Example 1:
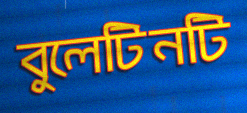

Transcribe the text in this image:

বুলেটিনটি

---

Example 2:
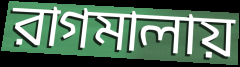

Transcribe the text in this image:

রাগমালায়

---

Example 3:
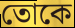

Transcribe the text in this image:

তোকে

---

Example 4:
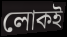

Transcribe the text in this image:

লোকই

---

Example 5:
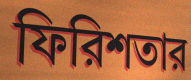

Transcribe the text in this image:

ফিরিশতার